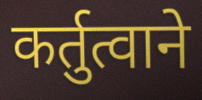
कर्तुत्वाने